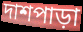
দাশপাড়া